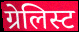
ग्रेलिस्ट